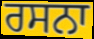
ਰਸਨਾ